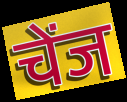
चेंज